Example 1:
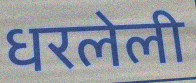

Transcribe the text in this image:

धरलेली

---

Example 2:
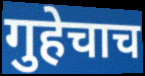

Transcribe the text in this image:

गुहेचाच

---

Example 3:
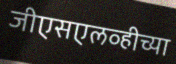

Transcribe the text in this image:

जीएसएलव्हीच्या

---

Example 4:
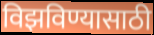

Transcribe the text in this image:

विझविण्यासाठी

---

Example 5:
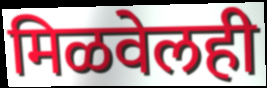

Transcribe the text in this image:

मिळवेलही